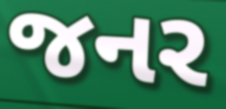
જનર